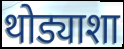
थोड्याशा